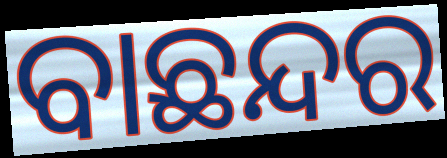
ବାଛନ୍ଦର